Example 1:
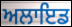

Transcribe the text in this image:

ਅਲਾਇਡ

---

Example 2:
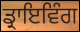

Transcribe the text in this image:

ਡ੍ਰਾਇਵਿੰਗ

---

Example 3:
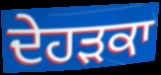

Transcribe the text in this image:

ਦੇਹੜਕਾ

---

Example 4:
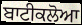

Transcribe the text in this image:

ਬਾਟੀਕਲੋਆ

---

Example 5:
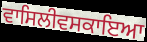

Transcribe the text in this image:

ਵਾਸਿਲੀਵਸਕਾਇਆ